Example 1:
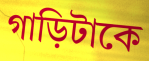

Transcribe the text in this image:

গাড়িটাকে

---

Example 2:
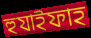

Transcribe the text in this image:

হুযাইফাহ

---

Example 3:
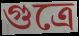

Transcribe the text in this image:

গুত্রে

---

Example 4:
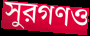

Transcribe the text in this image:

সুরগণও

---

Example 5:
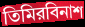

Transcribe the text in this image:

তিমিরবিনাশ